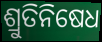
ଶ୍ରୁତିନିଷେଧ